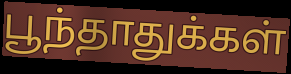
பூந்தாதுக்கள்